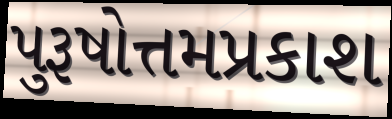
પુરૂષોત્તમપ્રકાશ